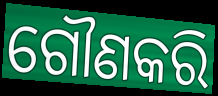
ଗୌଣକରି